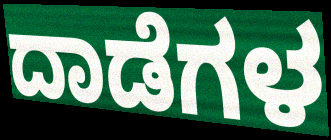
ದಾಡೆಗಳ